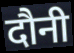
दौनी